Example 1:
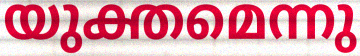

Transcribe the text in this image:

യുക്തമെന്നു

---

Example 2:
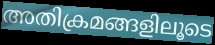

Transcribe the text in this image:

അതിക്രമങ്ങളിലൂടെ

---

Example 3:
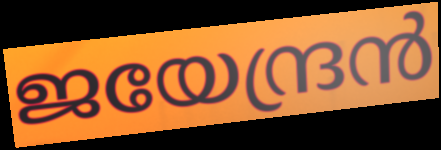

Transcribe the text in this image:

ജയേന്ദ്രൻ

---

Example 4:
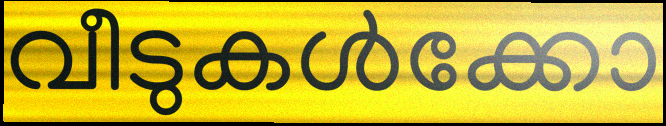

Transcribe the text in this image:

വീടുകൾക്കോ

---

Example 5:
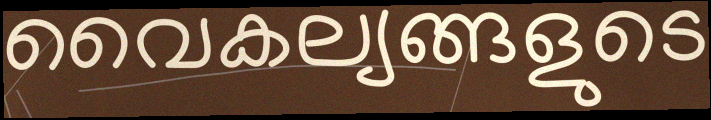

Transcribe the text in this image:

വൈകല്യങ്ങളുടെ